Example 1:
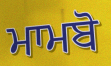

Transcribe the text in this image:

ਮਾਮਬੋ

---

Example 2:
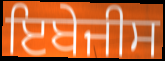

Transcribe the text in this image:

ਇਬੇਜੀਸ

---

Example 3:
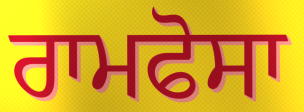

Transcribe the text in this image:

ਰਾਮਫੋਸਾ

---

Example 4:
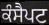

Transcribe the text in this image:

ਕੰਸੈਪਟ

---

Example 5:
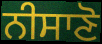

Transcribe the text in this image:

ਨੀਸਾਣੋ